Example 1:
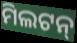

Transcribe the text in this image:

ମିଲଟନ୍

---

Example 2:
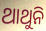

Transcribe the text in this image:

ଥାଥୁନି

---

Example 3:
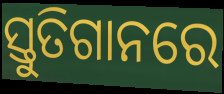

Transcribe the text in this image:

ସ୍ତୁତିଗାନରେ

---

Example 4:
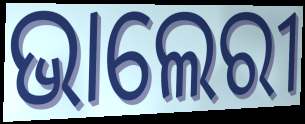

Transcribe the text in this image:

ଭାଲେରୀ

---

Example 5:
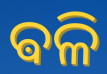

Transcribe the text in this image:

ଵଳି